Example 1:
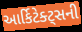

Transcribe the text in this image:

આર્કિટેક્ટ્સની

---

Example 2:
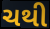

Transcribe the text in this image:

ચથી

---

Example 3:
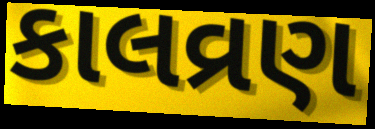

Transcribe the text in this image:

કાલવ્રણ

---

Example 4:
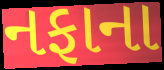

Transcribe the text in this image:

નફાના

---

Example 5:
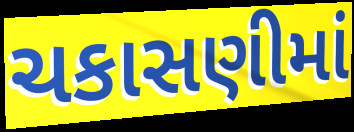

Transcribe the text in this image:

ચકાસણીમાં